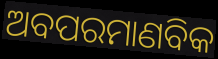
ଅବପରମାଣବିକ